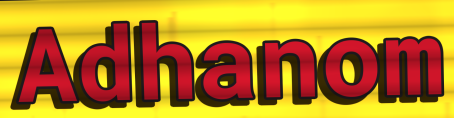
Adhanom